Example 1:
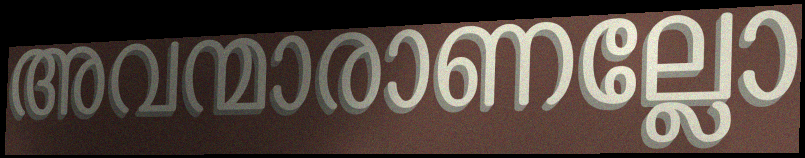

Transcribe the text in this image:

അവന്മാരാണല്ലോ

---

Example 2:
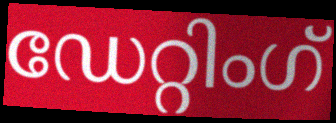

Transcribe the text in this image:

ഡേറ്റിംഗ്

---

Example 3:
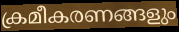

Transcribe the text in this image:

ക്രമീകരണങ്ങളും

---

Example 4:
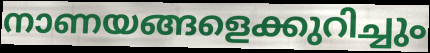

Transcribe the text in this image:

നാണയങ്ങളെക്കുറിച്ചും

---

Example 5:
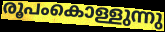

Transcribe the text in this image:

രൂപംകൊള്ളുന്നു